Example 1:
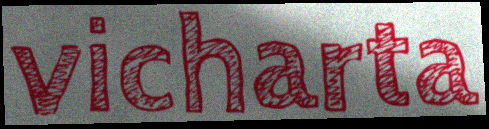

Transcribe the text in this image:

vicharta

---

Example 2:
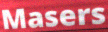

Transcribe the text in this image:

Masers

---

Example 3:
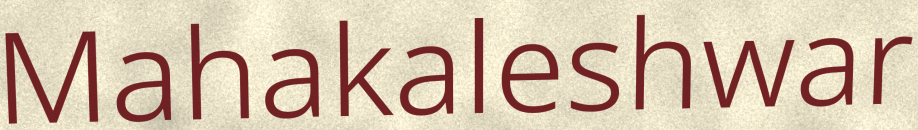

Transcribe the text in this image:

Mahakaleshwar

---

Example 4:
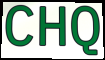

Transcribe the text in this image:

CHQ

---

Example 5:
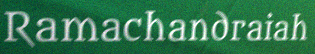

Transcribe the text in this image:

Ramachandraiah